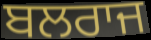
ਬਲਰਾਜ